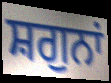
ਸ਼ਗੁਨਾਂ